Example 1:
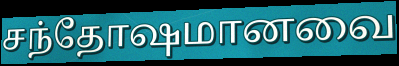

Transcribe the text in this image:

சந்தோஷமானவை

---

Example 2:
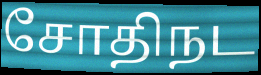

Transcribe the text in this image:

சோதிநட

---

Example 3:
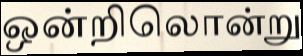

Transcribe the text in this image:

ஒன்றிலொன்று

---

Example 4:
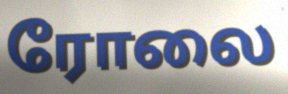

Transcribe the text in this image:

ரோலை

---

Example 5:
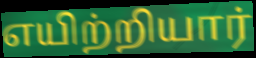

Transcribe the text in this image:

எயிற்றியார்